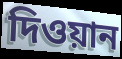
দিওয়ান